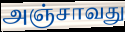
அஞ்சாவது